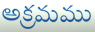
అక్రమము